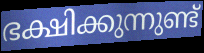
ഭക്ഷിക്കുന്നുണ്ട്